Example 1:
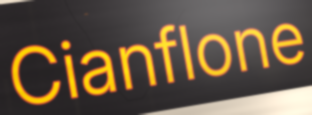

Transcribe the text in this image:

Cianflone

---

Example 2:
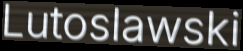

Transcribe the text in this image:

Lutoslawski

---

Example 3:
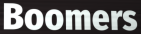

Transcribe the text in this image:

Boomers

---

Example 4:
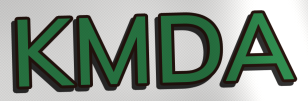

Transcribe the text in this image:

KMDA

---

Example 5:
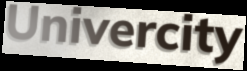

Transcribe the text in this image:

Univercity